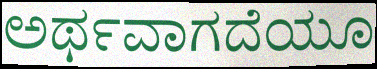
ಅರ್ಥವಾಗದೆಯೂ